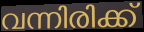
വന്നിരിക്ക്